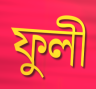
ফুলী